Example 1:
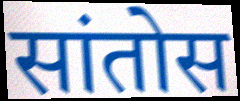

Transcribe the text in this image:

सांतोस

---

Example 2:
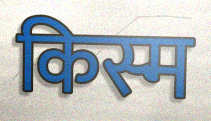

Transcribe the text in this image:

किस्‍म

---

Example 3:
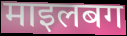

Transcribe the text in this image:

माइलबग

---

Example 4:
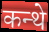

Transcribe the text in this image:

कन्थे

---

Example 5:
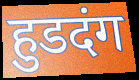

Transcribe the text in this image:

हुडदंग